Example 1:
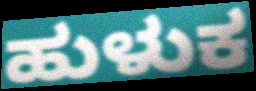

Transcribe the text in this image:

ಹುಳುಕ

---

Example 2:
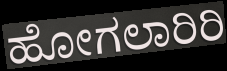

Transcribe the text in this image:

ಹೋಗಲಾರಿರಿ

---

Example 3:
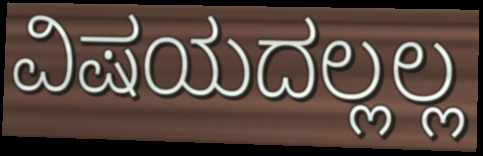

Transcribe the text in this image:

ವಿಷಯದಲ್ಲಲ್ಲ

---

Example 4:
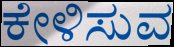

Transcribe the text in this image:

ಕೇಳಿಸುವ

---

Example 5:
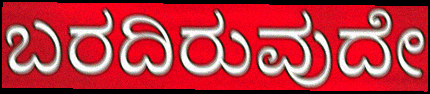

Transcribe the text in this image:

ಬರದಿರುವುದೇ